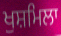
ਖੁਸ਼ਮਿਲਾ